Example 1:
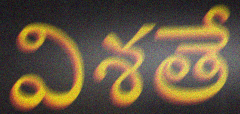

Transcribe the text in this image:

విశతే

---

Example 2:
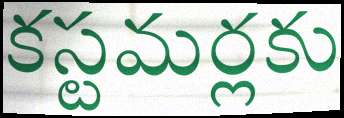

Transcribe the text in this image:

కస్టమర్లకు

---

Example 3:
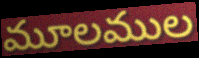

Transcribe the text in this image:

మూలముల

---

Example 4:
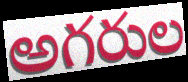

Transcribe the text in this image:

అగరుల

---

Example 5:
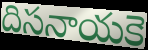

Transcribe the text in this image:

దిసనాయకె